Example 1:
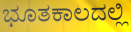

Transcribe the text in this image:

ಭೂತಕಾಲದಲ್ಲಿ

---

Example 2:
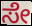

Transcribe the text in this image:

ಸೇ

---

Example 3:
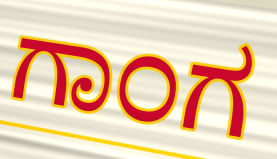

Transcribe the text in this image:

ಗಾಂಗ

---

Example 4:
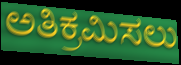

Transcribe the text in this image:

ಅತಿಕ್ರಮಿಸಲು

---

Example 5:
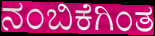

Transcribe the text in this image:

ನಂಬಿಕೆಗಿಂತ